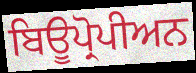
ਬਿਊਪ੍ਰੋਪੀਅਨ